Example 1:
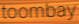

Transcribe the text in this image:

toombay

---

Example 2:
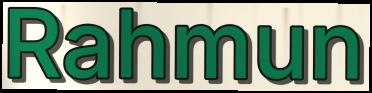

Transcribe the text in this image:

Rahmun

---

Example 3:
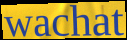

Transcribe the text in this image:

wachat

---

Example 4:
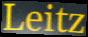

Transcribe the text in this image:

Leitz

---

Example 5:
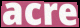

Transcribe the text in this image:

acre